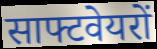
साफ्टवेयरों